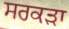
ਸਰਕੜਾ